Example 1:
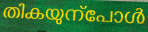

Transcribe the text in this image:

തികയുന്പോൾ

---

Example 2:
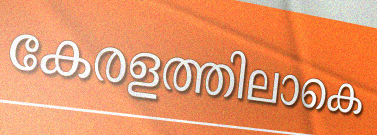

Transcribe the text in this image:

കേരളത്തിലാകെ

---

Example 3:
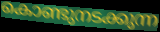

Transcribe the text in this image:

കൊണ്ടുനടക്കുന്ന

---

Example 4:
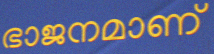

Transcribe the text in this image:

ഭാജനമാണ്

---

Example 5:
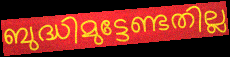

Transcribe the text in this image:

ബുദ്ധിമുട്ടേണ്ടതില്ല